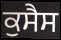
ਕੁਸੈਸ